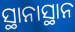
ସ୍ଥାନାସ୍ଥାନ